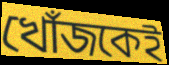
খোঁজকেই